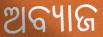
ଅବ୍ଯାଜ